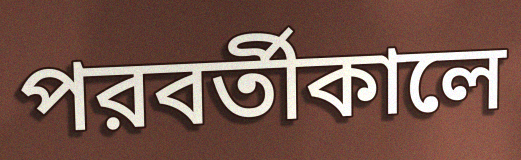
পরবর্তীকালে